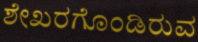
ಶೇಖರಗೊಂಡಿರುವ